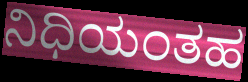
ನಿಧಿಯಂತಹ